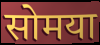
सोमया